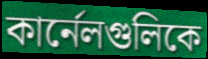
কার্নেলগুলিকে